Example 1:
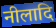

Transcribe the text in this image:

नीलादि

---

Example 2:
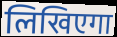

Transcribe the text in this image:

लिखिएगा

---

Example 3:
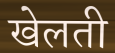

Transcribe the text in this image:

खेलती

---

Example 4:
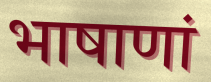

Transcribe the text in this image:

भाषाणां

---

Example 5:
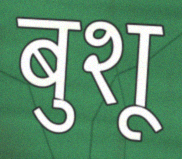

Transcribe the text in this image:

बुशू